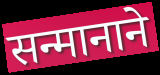
सन्मानाने